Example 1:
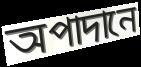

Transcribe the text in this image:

অপাদানে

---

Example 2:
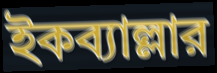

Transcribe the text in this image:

ইকব্যাল্লার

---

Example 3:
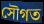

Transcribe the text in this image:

সৌগত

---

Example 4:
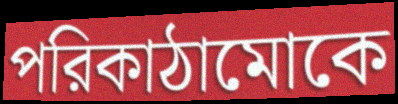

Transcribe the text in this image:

পরিকাঠামোকে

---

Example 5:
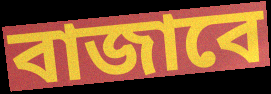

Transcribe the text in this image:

বাজাবে